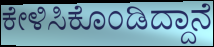
ಕೇಳಿಸಿಕೊಂಡಿದ್ದಾನೆ